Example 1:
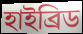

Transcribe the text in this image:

হাইব্রিড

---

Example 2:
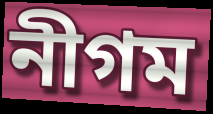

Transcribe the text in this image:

নীগম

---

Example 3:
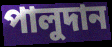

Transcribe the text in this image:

পালুদান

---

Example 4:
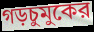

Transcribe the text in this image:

গড়চুমুকের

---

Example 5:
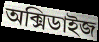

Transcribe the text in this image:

অক্সিডাইজ